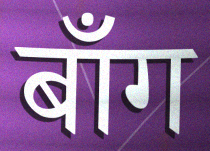
बाँग